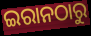
ଇରାନଠାରୁ